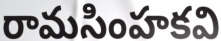
రామసింహకవి